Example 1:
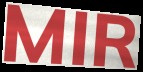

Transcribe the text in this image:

MIR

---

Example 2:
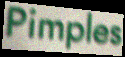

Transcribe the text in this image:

Pimples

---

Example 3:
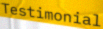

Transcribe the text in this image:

Testimonial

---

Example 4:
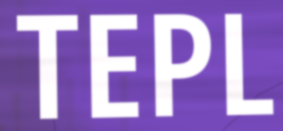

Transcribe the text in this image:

TEPL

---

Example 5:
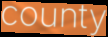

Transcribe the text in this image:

county